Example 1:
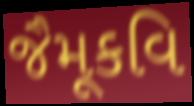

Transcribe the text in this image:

જૈમૂકવિ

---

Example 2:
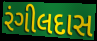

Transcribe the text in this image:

રંગીલદાસ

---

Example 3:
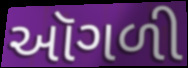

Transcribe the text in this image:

ઑગળી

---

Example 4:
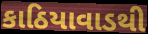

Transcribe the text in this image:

કાઠિયાવાડથી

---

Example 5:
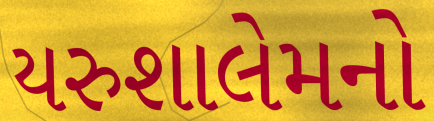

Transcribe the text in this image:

યરુશાલેમનો